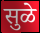
सुळे